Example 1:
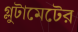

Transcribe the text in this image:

গ্লুটামেটের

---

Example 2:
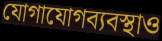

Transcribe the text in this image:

যোগাযোগব্যবস্থাও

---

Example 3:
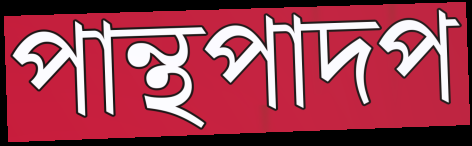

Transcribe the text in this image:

পান্থপাদপ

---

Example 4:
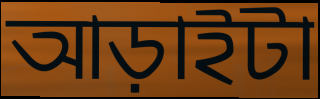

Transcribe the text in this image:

আড়াইটা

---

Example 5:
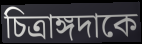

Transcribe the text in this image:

চিত্রাঙ্গদাকে